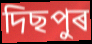
দিছপুৰ